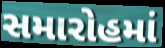
સમારોહમાં